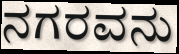
ನಗರವನು